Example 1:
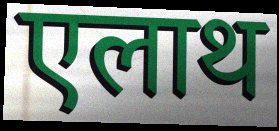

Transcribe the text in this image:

एलाथ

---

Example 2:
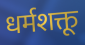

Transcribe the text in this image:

धर्मशक्तू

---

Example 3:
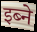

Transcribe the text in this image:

इब्ने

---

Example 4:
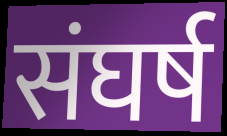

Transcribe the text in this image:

संघर्ष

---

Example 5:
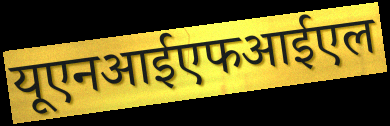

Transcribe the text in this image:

यूएनआईएफआईएल